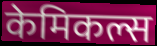
केमिकल्स